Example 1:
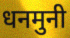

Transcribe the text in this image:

धनमुनी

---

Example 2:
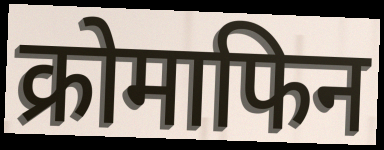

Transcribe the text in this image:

क्रोमाफिन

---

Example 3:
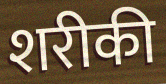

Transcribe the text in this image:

शरीकी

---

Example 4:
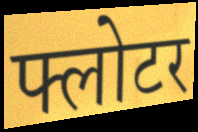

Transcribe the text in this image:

फ्लोटर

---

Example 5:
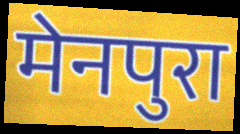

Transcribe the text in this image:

मेनपुरा